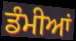
ਡੰਮੀਆਂ